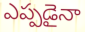
ఎప్పడైనా